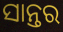
ସାନ୍ତର